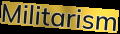
Militarism